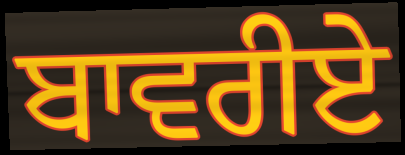
ਬਾਵਰੀਏ